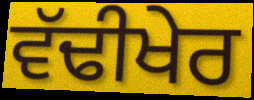
ਵੱਢੀਖੇਰ